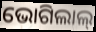
ଭୋଗିଲାଲ୍